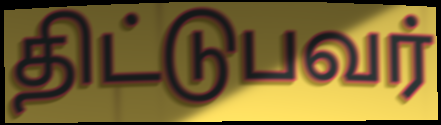
திட்டுபவர்